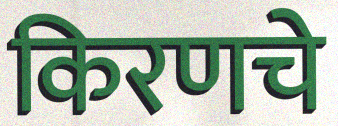
किरणचे